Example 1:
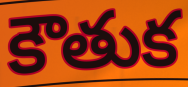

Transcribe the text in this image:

కౌతుక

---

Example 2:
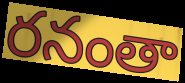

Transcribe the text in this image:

రనంతా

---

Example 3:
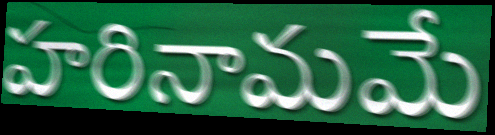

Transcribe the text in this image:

హరినామమే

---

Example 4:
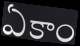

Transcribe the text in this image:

ఏకాం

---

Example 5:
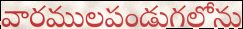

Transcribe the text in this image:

వారములపండుగలోను